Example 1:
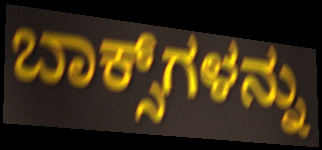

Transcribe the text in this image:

ಬಾಕ್ಸ್‌ಗಳನ್ನು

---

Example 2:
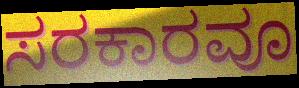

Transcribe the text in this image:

ಸರಕಾರವೂ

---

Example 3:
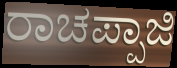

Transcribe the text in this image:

ರಾಚಪ್ಪಾಜಿ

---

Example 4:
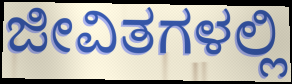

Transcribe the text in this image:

ಜೀವಿತಗಳಲ್ಲಿ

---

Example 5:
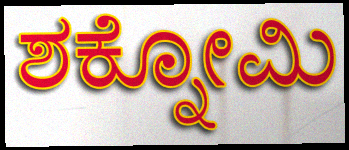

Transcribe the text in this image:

ಶಕ್ನೋಮಿ